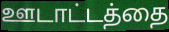
ஊடாட்டத்தை